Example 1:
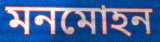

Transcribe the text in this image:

মনমোহন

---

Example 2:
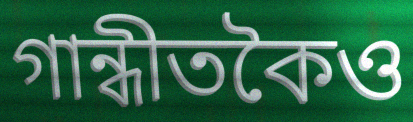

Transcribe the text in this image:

গান্ধীতকৈও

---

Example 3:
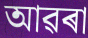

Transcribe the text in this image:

আৱৰা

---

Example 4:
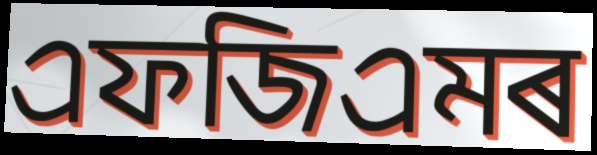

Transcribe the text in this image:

এফজিএমৰ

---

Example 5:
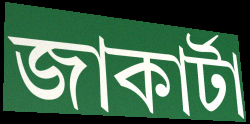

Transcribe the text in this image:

জাকাৰ্টা